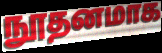
நூதனமாக